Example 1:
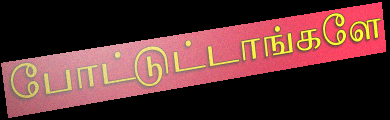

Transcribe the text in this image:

போட்டுட்டாங்களே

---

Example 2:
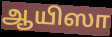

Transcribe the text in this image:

ஆயிஸா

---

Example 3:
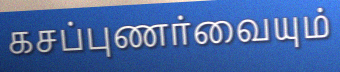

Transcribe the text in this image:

கசப்புணர்வையும்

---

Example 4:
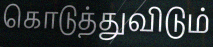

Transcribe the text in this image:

கொடுத்துவிடும்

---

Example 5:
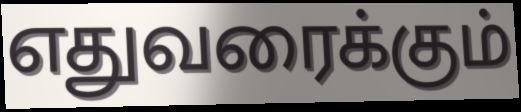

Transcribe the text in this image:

எதுவரைக்கும்